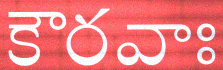
కౌరవాః